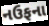
નઉફના